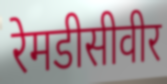
रेमडीसीवीर